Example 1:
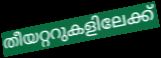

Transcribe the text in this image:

തീയറ്ററുകളിലേക്ക്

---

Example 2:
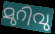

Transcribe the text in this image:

മുറിവു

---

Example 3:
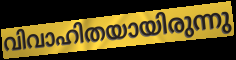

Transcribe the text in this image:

വിവാഹിതയായിരുന്നു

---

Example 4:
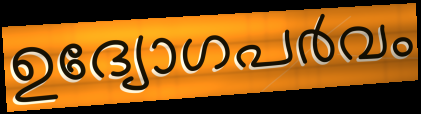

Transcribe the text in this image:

ഉദ്യോഗപർവം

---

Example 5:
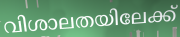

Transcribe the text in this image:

വിശാലതയിലേക്ക്